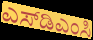
ಎಸ್‌ಡಿಎಂಸಿ